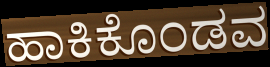
ಹಾಕಿಕೊಂಡವ